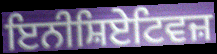
ਇਨੀਸ਼ਿਏਟਿਵਜ਼